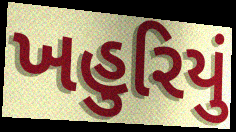
ખહુરિયું